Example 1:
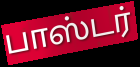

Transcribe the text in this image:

பாஸ்டர்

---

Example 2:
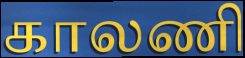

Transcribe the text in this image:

காலணி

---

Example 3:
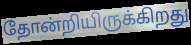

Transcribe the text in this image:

தோன்றியிருக்கிறது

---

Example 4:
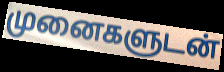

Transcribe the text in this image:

முனைகளுடன்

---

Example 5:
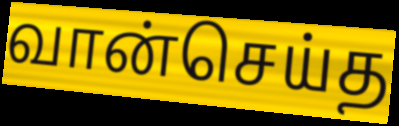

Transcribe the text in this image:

வான்செய்த